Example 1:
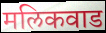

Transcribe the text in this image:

मलिकवाड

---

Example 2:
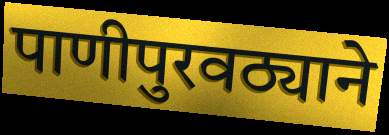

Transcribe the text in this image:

पाणीपुरवठ्याने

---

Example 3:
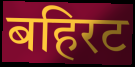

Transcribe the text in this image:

बहिरट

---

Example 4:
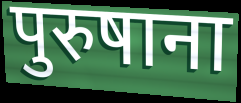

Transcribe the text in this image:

पुरुषाना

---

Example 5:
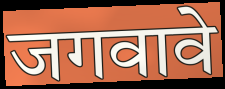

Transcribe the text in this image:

जगवावे